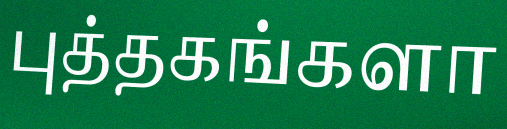
புத்தகங்களா